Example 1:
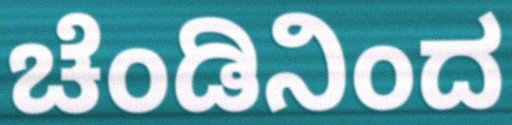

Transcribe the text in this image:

ಚೆಂಡಿನಿಂದ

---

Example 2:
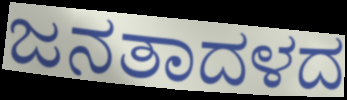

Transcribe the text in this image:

ಜನತಾದಳದ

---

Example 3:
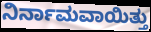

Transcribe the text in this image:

ನಿರ್ನಾಮವಾಯಿತ್ತು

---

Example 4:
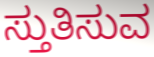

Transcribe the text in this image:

ಸ್ತುತಿಸುವ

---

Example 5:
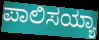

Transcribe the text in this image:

ಪಾಲಿಸಯ್ಯಾ